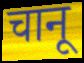
चानू